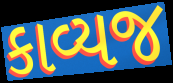
કાવ્યજ